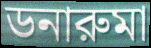
ডনারুমা